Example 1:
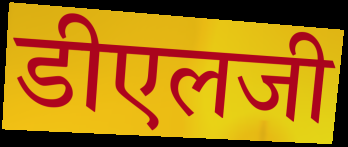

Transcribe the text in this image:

डीएलजी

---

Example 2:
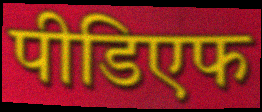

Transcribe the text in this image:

पीडिएफ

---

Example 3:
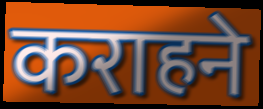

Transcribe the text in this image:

कराहने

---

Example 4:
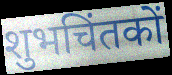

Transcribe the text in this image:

शुभचिंतकों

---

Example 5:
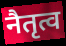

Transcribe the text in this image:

नैतृत्व